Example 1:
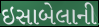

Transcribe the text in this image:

ઇસાબેલાની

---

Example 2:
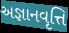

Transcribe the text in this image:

અજ્ઞાનવૃત્તિ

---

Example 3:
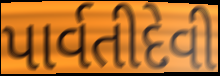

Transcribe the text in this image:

પાર્વતીદેવી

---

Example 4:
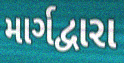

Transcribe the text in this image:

માર્ગદ્વારા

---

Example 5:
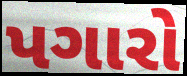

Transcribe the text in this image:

પગારો